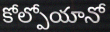
కోల్పోయానో